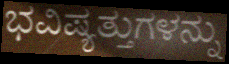
ಭವಿಷ್ಯತ್ತುಗಳನ್ನು